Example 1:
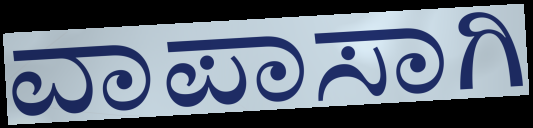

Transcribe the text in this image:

ವಾಪಾಸಾಗಿ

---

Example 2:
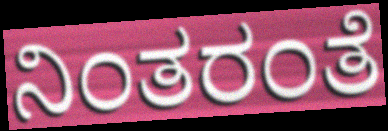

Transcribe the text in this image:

ನಿಂತರಂತೆ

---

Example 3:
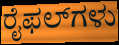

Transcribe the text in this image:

ರೈಫಲ್‌ಗಳು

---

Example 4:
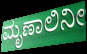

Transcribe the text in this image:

ಮೃಣಾಲಿನೀ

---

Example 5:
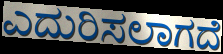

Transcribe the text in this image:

ಎದುರಿಸಲಾಗದೆ